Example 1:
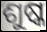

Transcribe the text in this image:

ଶୁଷ୍କ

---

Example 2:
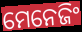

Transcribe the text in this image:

ମେନେଜିଂ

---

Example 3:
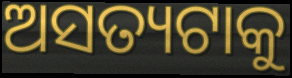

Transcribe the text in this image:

ଅସତ୍ୟଟାକୁ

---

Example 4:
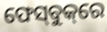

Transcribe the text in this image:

ଫେସ୍‌ବୁକ୍‌ରେ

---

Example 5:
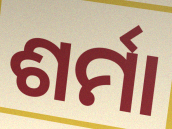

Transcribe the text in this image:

ଶର୍ମା